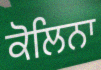
ਕੋਲਿਨਾ